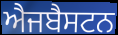
ਐਜਬੈਸਟਨ